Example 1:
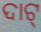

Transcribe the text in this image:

ଦାଟ୍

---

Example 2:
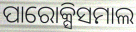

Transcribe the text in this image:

ପାରୋକ୍ସିସମାଲ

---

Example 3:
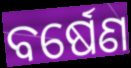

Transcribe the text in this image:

ବର୍ଷେଣ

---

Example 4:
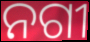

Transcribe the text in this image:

ନଗୀ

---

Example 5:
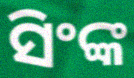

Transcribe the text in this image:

ସିଂଙ୍କ